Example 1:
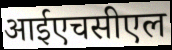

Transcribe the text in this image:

आईएचसीएल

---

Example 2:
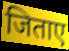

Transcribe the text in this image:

जिताए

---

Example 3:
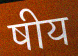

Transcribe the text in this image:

षीय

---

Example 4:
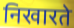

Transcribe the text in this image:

निखारते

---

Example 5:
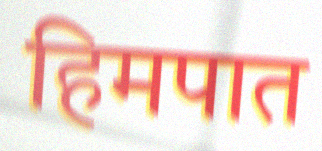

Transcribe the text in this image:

हिमपात